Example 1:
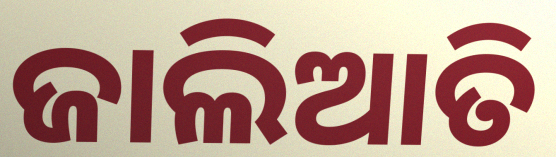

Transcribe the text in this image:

ଜାଲିଆତି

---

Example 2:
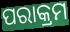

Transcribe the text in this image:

ପରାକ୍ରମ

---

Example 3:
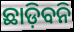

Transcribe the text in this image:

ଛାଡ଼ିବନି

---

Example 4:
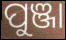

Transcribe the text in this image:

ପୁଞ୍ଜା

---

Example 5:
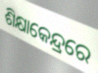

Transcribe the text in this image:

ଶିକ୍ଷାକେନ୍ଦ୍ରରେ